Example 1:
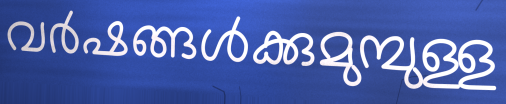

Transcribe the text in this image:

വർഷങ്ങൾക്കുമുമ്പുള്ള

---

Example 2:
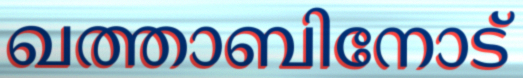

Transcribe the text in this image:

ഖത്താബിനോട്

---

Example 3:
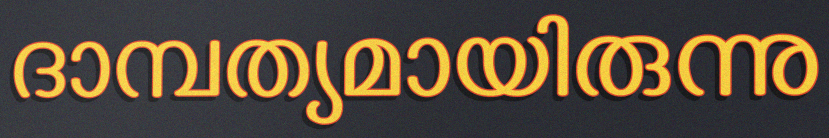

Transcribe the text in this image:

ദാമ്പത്യമായിരുന്നു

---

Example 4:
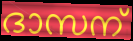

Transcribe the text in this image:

ദാസന്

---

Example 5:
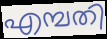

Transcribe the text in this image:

എമ്പതി